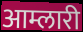
आम्लारी